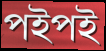
পইপই